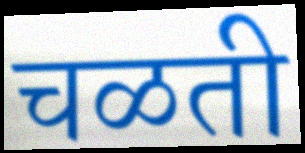
चळती